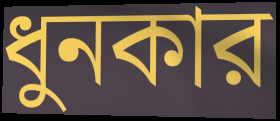
ধুনকার